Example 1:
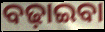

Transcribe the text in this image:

ବଢ଼ାଇବା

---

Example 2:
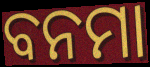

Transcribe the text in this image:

ବନମା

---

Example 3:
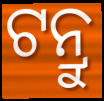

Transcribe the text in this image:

ଟନ୍ରୁ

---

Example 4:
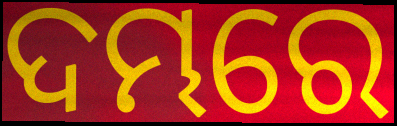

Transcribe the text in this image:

ଦମ୍ଭରେ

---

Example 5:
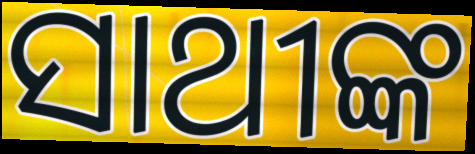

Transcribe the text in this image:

ସାଥୀଙ୍କ